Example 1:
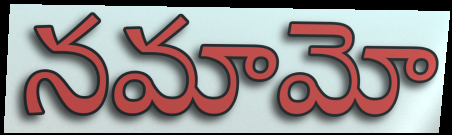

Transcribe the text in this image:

నమామో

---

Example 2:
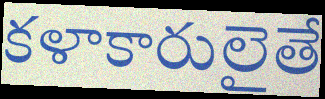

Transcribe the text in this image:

కళాకారులైతే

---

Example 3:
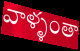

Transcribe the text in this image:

వాళ్ళంతా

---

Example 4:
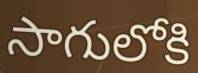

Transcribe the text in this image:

సాగులోకి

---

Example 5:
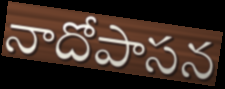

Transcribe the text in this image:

నాదోపాసన